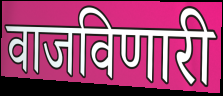
वाजविणारी